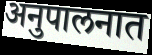
अनुपालनात